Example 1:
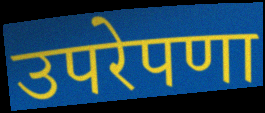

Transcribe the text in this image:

उपरेपणा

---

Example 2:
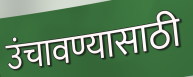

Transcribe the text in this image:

उंचावण्यासाठी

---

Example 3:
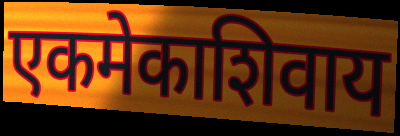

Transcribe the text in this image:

एकमेकाशिवाय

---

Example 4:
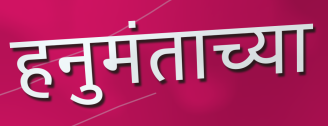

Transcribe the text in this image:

हनुमंताच्या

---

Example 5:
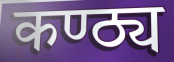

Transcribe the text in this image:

कण्ठ्य